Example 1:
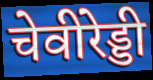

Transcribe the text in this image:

चेवीरेड्डी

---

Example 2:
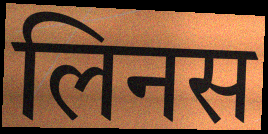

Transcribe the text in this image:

लिनस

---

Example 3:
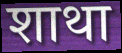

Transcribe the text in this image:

शाथा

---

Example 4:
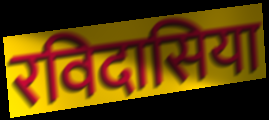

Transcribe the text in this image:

रविदासिया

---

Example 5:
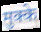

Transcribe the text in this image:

मुक्के